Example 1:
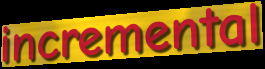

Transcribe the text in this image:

incremental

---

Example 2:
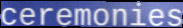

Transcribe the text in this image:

ceremonies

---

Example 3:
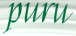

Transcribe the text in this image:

puru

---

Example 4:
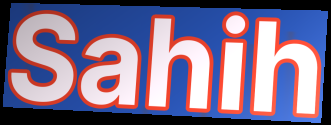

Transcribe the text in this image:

Sahih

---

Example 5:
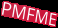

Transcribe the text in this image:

PMFME